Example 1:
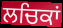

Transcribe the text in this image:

ਲਚਿਕਾਂ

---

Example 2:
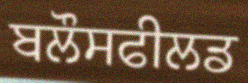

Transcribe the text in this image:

ਬਲੌਸਫੀਲਡ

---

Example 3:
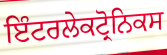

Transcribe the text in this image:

ਇੰਟਰਲੇਕਟ੍ਰੋਨਿਕਸ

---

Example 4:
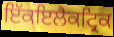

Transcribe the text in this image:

ਇੱਕਇਲੈਕਟ੍ਰਿਕ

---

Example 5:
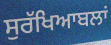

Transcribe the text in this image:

ਸੁਰੱਖਿਆਬਲਾਂ